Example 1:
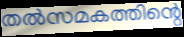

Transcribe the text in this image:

തൽസമകത്തിന്റെ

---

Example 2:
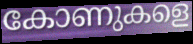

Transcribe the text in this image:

കോണുകളെ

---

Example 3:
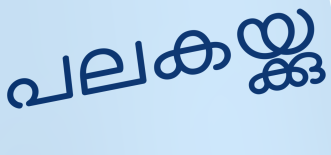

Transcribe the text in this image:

പലകയ്ക്കു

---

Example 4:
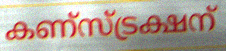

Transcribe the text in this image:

കണ്സ്ട്രക്ഷന്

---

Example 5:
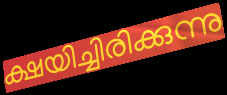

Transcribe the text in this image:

ക്ഷയിച്ചിരിക്കുന്നു